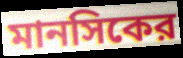
মানসিকের